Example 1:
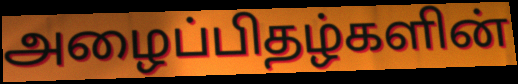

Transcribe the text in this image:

அழைப்பிதழ்களின்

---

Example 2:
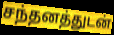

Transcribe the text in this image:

சந்தனத்துடன்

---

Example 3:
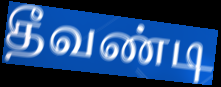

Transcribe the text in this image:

தீவண்டி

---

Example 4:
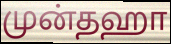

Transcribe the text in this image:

முன்தஹா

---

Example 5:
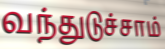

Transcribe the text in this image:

வந்துடுச்சாம்